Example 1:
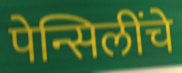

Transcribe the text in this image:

पेन्सिलींचे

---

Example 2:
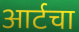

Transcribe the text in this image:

आर्टचा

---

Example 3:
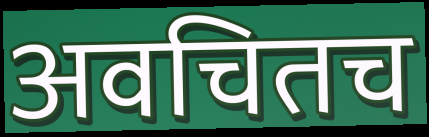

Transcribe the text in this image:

अवचितच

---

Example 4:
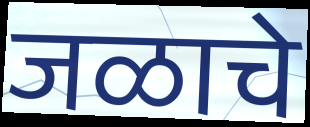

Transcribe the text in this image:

जळाचे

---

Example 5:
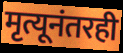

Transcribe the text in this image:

मृत्यूनंतरही